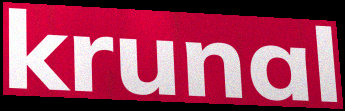
krunal